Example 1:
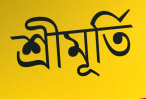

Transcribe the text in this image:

শ্রীমূর্তি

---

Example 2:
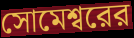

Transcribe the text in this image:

সোমেশ্বরের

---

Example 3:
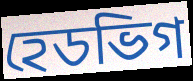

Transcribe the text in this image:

হেডভিগ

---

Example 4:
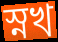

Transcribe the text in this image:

স্নখ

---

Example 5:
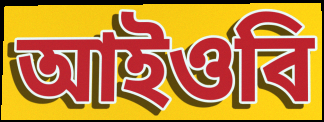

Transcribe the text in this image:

আইওবি